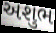
અશુભ